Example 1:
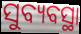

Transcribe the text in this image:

ସୁବ୍ୟବସ୍ଥା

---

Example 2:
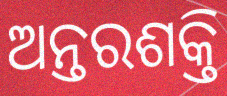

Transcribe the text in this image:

ଅନ୍ତରଶକ୍ତି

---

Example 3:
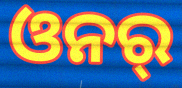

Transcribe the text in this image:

ଓନର୍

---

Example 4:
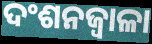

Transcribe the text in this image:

ଦଂଶନଜ୍ୱାଳା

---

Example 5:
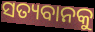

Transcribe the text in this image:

ସତ୍ୟବାନକୁ